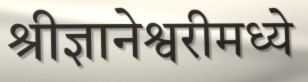
श्रीज्ञानेश्वरीमध्ये